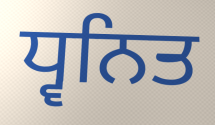
ਧ੍ਵਨਿਤ